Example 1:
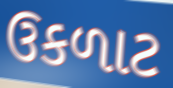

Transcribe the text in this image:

ઉકળાટ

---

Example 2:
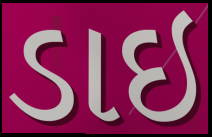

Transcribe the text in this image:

ડાઇ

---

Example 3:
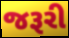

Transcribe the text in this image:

જરૂરી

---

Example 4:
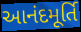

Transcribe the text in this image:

આનંદમૂર્તિ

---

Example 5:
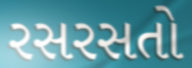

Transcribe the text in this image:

રસરસતો